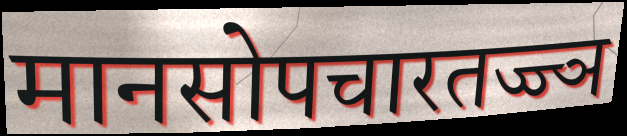
मानसोपचारतज्ज्ञ